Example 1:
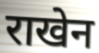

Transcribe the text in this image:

राखेन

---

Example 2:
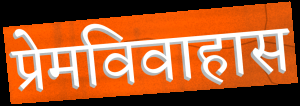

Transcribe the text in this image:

प्रेमविवाहास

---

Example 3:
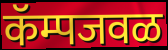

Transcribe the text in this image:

कॅम्पजवळ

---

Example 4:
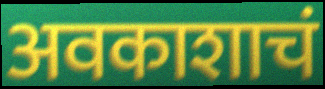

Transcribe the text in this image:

अवकाशाचं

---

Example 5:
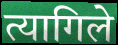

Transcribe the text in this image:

त्यागिले